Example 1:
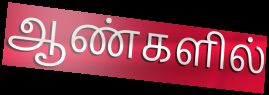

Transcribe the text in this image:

ஆண்களில்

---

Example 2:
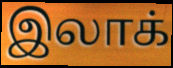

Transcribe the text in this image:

இலாக்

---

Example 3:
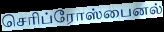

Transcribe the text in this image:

செரிப்ரோஸ்பைனல்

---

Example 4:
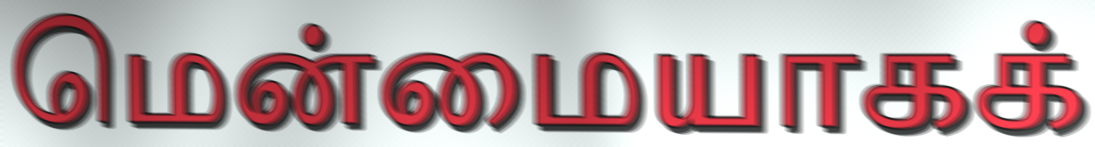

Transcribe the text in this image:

மென்மையாகக்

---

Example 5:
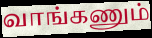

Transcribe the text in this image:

வாங்கணும்